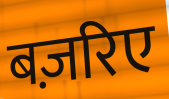
बज़रिए